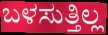
ಬಳಸುತ್ತಿಲ್ಲ